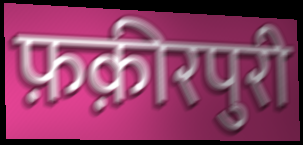
फ़क़ीरपुरी